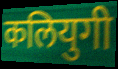
कलियुगी